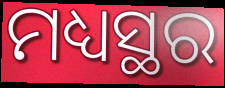
ମଧ୍ୟସ୍ଥର